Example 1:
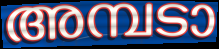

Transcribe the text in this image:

അമ്പടാ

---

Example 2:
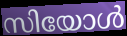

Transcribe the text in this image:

സിയോൾ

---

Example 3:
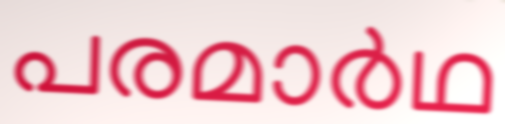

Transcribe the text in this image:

പരമാർഥ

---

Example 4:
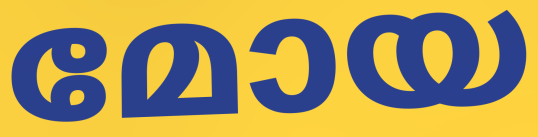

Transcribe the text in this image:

മോയ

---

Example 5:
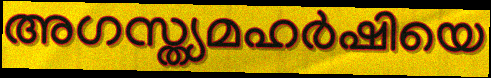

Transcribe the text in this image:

അഗസ്ത്യമഹർഷിയെ